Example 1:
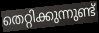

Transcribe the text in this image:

തെറ്റിക്കുന്നുണ്ട്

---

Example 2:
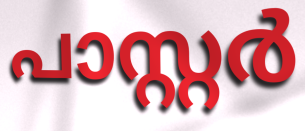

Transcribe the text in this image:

പാസ്റ്റർ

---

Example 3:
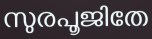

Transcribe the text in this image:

സുരപൂജിതേ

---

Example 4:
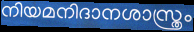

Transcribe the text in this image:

നിയമനിദാനശാസ്ത്രം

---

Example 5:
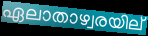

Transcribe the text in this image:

ഏലാതാഴ്വരയില്